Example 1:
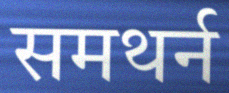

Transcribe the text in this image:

समथर्न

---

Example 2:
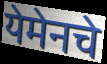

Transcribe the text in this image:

येमेनचे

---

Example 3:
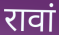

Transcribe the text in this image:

रावां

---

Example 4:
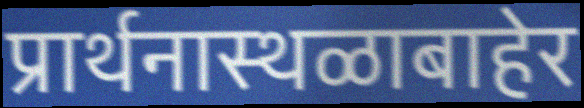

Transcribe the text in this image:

प्रार्थनास्थळाबाहेर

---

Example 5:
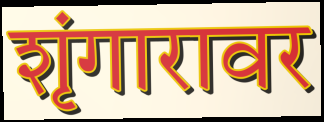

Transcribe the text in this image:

शृंगारावर